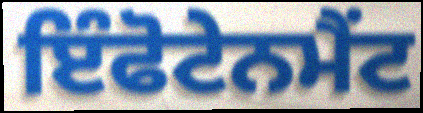
ਇੰਫੋਟੇਨਮੈਂਟ